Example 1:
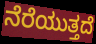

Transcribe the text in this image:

ನೆರೆಯುತ್ತದೆ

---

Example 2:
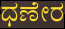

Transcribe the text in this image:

ಧಣೇರ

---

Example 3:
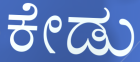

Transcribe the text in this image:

ಕೇಡು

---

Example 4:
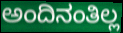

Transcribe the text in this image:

ಅಂದಿನಂತಿಲ್ಲ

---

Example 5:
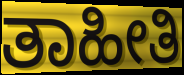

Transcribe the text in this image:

ತಾಹೀತಿ